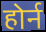
होर्न